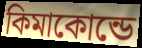
কিমাকোন্ডে